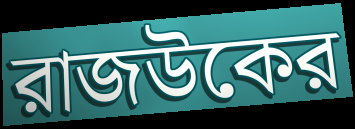
রাজউকের